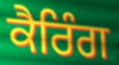
ਕੈਰਿੰਗ